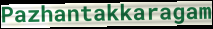
Pazhantakkaragam